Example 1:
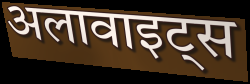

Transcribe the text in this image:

अलावाइट्स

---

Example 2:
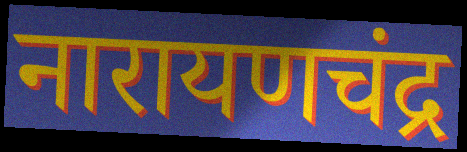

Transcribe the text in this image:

नारायणचंद्र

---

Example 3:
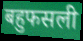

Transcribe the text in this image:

बहुफसली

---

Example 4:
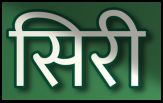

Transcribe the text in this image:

सिरी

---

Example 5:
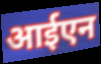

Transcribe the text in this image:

आईएन